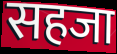
सहजा